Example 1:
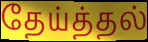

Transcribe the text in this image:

தேய்த்தல்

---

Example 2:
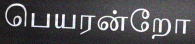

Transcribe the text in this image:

பெயரன்றோ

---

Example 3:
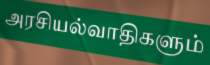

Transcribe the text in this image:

அரசியல்வாதிகளும்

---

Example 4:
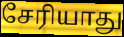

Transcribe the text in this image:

சேரியாது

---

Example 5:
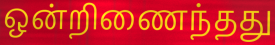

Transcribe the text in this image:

ஒன்றிணைந்தது